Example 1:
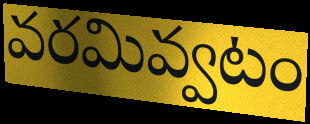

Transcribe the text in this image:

వరమివ్వటం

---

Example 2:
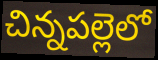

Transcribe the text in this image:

చిన్నపల్లెలో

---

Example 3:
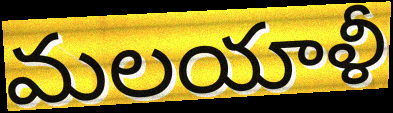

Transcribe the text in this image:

మలయాళీ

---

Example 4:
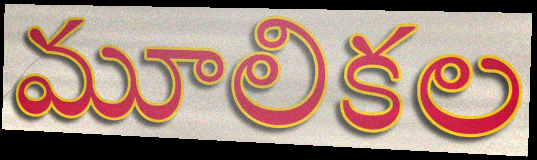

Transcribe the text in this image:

మూలికల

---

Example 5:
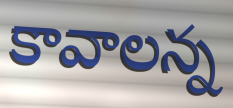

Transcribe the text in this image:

కావాలన్న